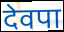
देवपा